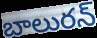
బాలురన్